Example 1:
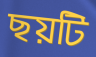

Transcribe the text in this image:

ছয়টি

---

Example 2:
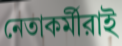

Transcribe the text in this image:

নেতাকর্মীরাই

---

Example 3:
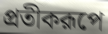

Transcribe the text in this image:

প্রতীকরূপে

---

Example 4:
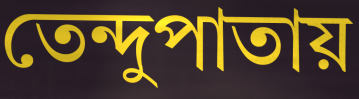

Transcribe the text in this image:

তেন্দুপাতায়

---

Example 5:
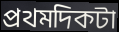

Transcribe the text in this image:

প্রথমদিকটা